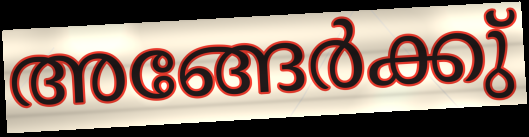
അങ്ങേർക്കു്